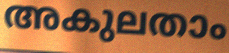
അകുലതാം